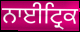
ਨਾਈਟ੍ਰਿਕ